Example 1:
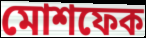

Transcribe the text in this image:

মোশফেক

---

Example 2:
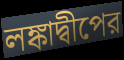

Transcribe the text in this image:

লঙ্কাদ্বীপের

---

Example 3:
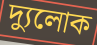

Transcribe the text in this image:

দ্যুলোক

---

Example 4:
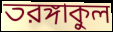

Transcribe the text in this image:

তরঙ্গাকুল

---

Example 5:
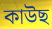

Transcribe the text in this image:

কাউছ